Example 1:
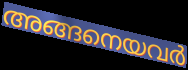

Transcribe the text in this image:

അങ്ങനെയവർ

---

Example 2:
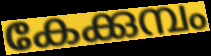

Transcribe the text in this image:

കേക്കുമ്പം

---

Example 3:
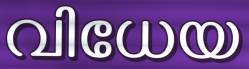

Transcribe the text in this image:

വിധേയ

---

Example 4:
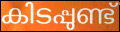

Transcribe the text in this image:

കിടപ്പുണ്ട്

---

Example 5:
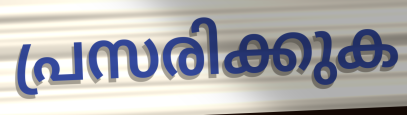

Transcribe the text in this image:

പ്രസരിക്കുക